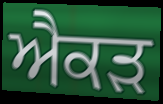
ਐਕੜ